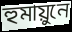
হুমায়ুনে